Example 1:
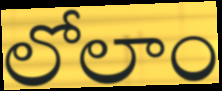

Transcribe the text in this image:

లోలాం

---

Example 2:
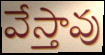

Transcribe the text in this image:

వేస్తావు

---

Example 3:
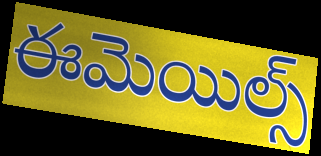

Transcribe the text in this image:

ఈమెయిల్స్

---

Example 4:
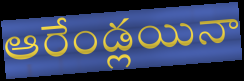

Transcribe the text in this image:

ఆరేండ్లయినా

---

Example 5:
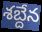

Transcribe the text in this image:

శబ్దేన